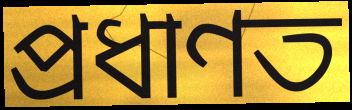
প্রধাণত